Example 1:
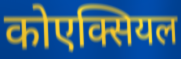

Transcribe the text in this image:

कोएक्सियल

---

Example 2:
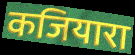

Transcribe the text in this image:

कजियारा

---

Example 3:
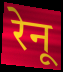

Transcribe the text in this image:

रेनू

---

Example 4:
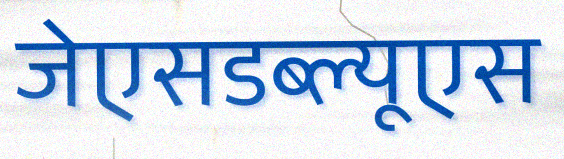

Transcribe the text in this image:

जेएसडब्ल्यूएस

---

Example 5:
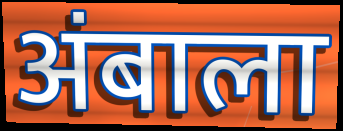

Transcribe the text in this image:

अंबाला